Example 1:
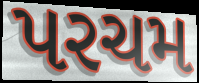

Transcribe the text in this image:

પરચમ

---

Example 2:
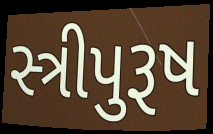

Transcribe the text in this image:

સ્ત્રીપુરૂષ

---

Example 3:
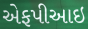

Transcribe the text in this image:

એફપીઆઇ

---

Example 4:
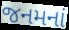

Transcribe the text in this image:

જનમનાં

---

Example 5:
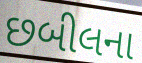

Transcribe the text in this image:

છબીલના